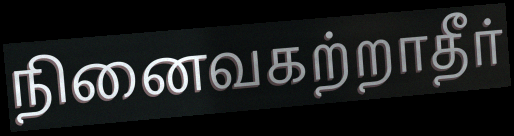
நினைவகற்றாதீர்